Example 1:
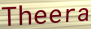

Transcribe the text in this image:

Theera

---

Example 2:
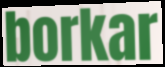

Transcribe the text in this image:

borkar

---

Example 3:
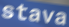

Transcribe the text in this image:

stava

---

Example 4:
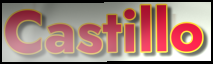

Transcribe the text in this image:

Castillo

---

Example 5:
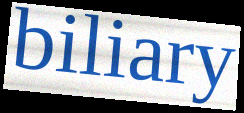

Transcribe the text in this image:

biliary